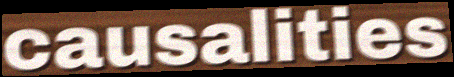
causalities